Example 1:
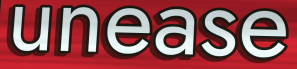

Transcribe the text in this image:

unease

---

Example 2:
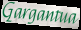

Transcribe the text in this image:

Gargantua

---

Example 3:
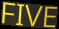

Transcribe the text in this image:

FIVE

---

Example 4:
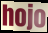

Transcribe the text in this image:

hojo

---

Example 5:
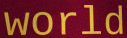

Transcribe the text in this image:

world